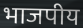
भाजपीय